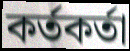
কর্তকর্তা